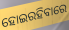
ହୋଇରହିବାରେ